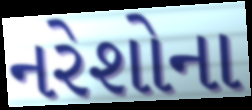
નરેશોના